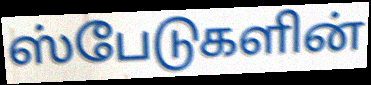
ஸ்பேடுகளின்